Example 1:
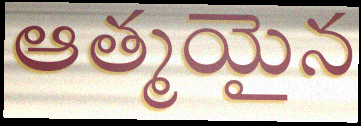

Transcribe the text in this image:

ఆత్మయైన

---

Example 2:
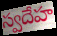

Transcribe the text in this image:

స్వదేహ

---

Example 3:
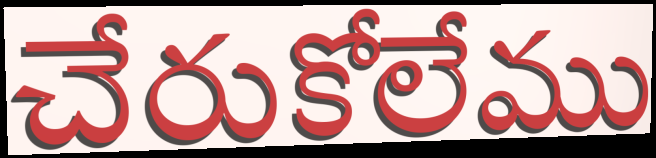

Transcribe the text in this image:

చేరుకోలేము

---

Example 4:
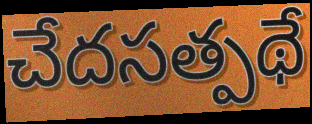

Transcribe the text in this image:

చేదసత్పథే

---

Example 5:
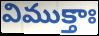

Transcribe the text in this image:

విముక్తాః